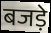
बजड़े